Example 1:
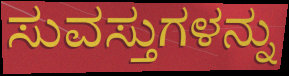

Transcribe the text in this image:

ಸುವಸ್ತುಗಳನ್ನು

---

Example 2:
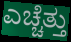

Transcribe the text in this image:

ಎಚ್ಚೆತ್ತು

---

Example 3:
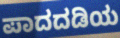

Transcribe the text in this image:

ಪಾದದಡಿಯ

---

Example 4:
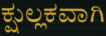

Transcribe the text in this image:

ಕ್ಷುಲ್ಲಕವಾಗಿ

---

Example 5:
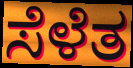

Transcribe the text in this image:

ಸೆಳೆತ